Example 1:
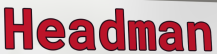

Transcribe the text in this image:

Headman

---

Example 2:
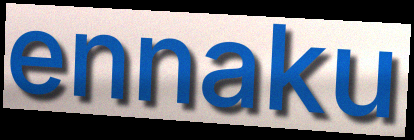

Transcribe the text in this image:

ennaku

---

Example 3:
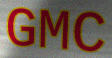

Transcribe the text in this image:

GMC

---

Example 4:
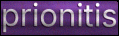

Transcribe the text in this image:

prionitis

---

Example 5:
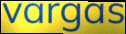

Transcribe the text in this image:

vargas